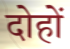
दोहों